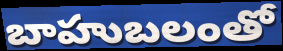
బాహుబలంతో